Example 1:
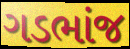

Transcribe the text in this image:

ગડભાંજ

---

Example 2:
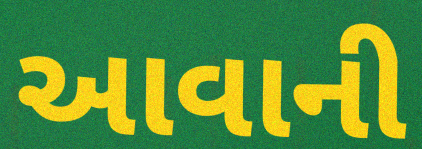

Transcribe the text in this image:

આવાની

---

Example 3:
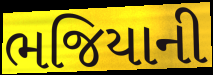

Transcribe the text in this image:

ભજિયાની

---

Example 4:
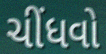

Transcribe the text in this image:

ચીંધવો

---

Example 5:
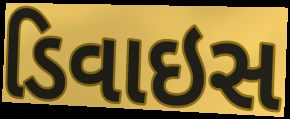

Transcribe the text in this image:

ડિવાઇસ